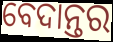
ବେଦାନ୍ତର